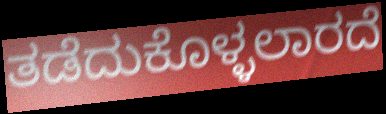
ತಡೆದುಕೊಳ್ಳಲಾರದೆ